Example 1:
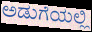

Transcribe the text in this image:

ಅಡುಗೆಯಲ್ಲಿ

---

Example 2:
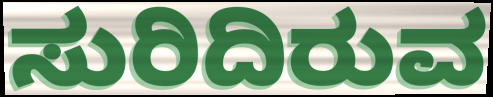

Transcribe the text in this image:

ಸುರಿದಿರುವ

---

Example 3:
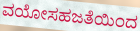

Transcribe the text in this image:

ವಯೋಸಹಜತೆಯಿಂದ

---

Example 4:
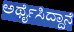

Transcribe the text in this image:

ಅರ್ಥೈಸಿದ್ದಾನೆ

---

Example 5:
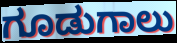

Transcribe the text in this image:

ಗೂಡುಗಾಲು